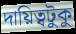
দায়িত্বটুকু